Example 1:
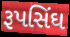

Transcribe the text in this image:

રૂપસિંઘ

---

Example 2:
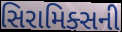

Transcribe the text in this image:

સિરામિક્સની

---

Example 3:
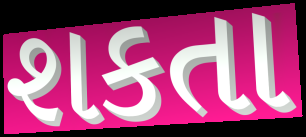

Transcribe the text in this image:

શકતા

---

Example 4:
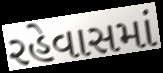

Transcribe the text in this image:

રહેવાસમાં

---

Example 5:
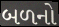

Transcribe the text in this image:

બળનો